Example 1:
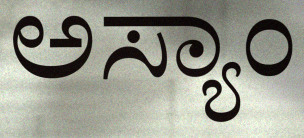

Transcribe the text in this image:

ಅಸ್ಯಾಂ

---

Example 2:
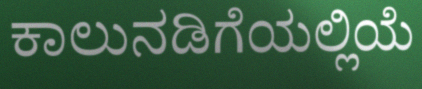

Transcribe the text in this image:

ಕಾಲುನಡಿಗೆಯಲ್ಲಿಯೆ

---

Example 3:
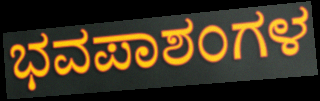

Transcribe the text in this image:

ಭವಪಾಶಂಗಳ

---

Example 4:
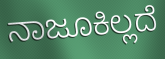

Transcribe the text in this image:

ನಾಜೂಕಿಲ್ಲದೆ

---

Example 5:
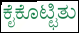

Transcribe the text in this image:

ಕೈಕೊಟ್ಟಿತು